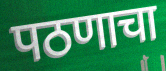
पठणाचा